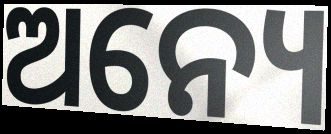
ଅନ୍ୟେ